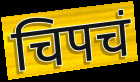
चिपचं